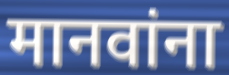
मानवांना